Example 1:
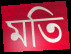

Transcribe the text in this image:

মতি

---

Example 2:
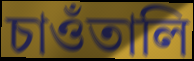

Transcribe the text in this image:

চাওঁতালি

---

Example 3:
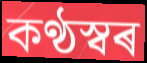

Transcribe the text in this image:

কণ্ঠস্বৰ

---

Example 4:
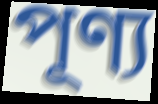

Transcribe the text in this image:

পূণ্য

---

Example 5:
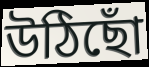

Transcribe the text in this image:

উঠিছোঁ